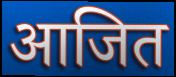
आजित